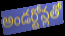
అండర్టోన్లతో